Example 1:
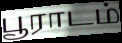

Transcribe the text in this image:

பூராடம்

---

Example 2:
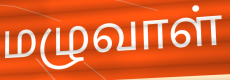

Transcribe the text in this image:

மழுவாள்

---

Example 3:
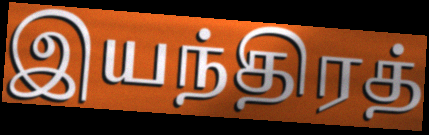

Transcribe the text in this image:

இயந்திரத்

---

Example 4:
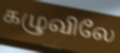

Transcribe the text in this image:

கழுவிலே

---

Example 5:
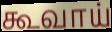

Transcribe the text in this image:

கூவாய்